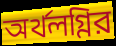
অর্থলগ্নির